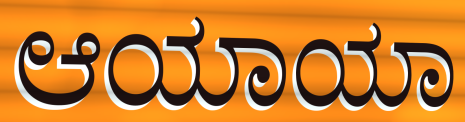
ಆಯಾಯಾ